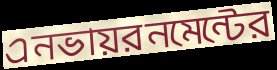
এনভায়রনমেন্টের